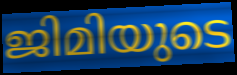
ജിമിയുടെ